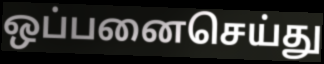
ஒப்பனைசெய்து